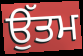
ਉੱਤਮ